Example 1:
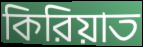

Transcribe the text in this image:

কিরিয়াত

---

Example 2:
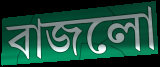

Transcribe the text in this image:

বাজলো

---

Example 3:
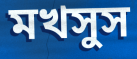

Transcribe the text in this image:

মখসুস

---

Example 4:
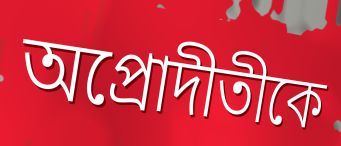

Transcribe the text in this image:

অপ্রোদীতীকে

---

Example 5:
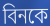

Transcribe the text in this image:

বিনকে